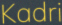
Kadri